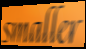
smaller